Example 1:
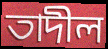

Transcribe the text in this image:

তাদীল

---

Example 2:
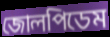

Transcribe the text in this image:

জোলপিডেম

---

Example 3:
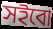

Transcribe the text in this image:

সইবো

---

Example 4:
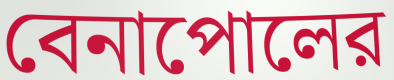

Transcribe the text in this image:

বেনাপোলের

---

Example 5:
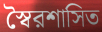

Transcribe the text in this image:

স্বৈরশাসিত